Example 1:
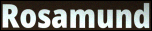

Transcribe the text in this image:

Rosamund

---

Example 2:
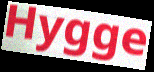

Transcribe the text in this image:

Hygge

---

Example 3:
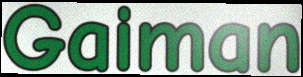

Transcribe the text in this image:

Gaiman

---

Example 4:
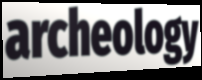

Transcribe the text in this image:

archeology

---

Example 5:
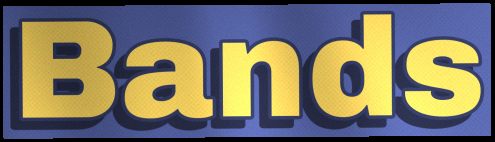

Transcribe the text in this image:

Bands